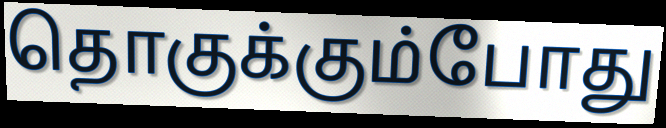
தொகுக்கும்போது